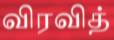
விரவித்